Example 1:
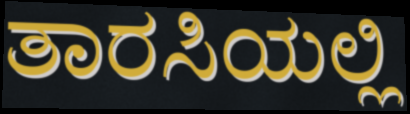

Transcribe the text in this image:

ತಾರಸಿಯಲ್ಲಿ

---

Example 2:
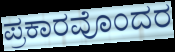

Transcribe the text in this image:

ಪ್ರಕಾರವೊಂದರ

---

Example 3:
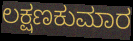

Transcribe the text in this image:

ಲಕ್ಷಣಕುಮಾರ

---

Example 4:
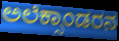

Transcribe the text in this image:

ಅಲೆಕ್ಸಾಂಡರನ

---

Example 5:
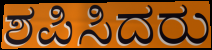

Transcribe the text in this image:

ಶಪಿಸಿದರು